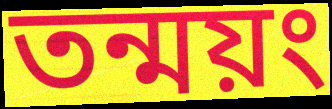
তন্ময়ং